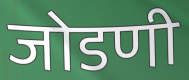
जोडणी